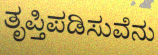
ತೃಪ್ತಿಪಡಿಸುವೆನು